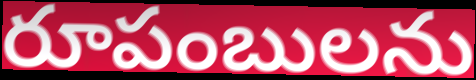
రూపంబులను